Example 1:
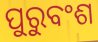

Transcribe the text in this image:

ପୁରୁବଂଶ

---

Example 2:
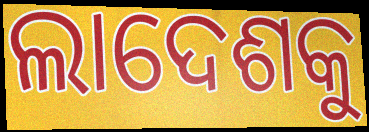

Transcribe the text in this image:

ଲାଦେଶକୁ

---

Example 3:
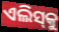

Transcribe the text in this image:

ଏଲିସ୍‌କୁ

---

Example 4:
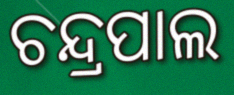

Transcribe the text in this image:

ଚନ୍ଦ୍ରପାଲ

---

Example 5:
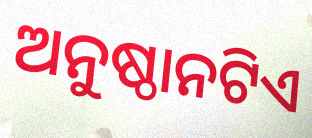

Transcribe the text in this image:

ଅନୁଷ୍ଠାନଟିଏ